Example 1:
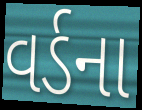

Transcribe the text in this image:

વર્ડના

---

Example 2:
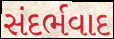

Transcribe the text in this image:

સંદર્ભવાદ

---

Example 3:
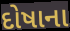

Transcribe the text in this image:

દોષાના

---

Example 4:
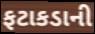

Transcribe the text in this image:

ફટાકડાની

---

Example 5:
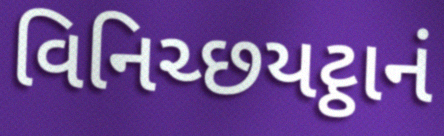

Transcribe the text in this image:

વિનિચ્છયટ્ઠાનં